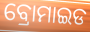
ବ୍ରୋମାଇଡ